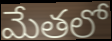
మేతలో